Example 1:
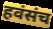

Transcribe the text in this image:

हवंसंच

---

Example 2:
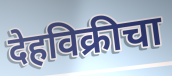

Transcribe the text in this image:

देहविक्रीचा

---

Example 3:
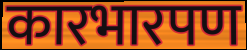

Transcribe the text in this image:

कारभारपण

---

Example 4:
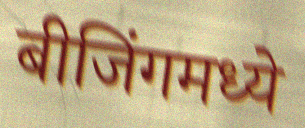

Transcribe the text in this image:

बीजिंगमध्ये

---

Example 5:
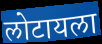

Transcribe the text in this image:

लोटायला